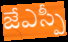
జేఎస్పీ